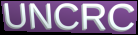
UNCRC